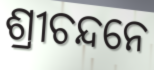
ଶ୍ରୀଚନ୍ଦନେ